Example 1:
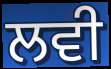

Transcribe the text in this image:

ਲਵੀ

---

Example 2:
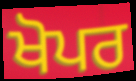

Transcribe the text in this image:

ਖੋਪਰ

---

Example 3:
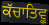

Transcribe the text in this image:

ਕੱਚਾਤਿਵੂ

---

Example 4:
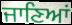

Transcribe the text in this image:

ਜਾਣਿਆਂ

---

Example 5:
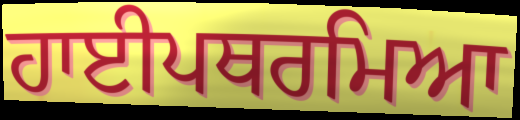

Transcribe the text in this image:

ਹਾਈਪਥਰਮਿਆ